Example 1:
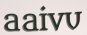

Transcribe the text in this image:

aaivu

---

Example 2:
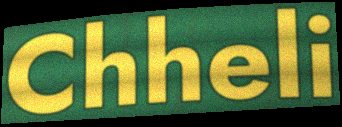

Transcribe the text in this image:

Chheli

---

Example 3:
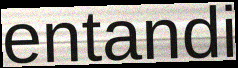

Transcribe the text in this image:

entandi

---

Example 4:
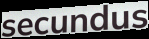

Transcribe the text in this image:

secundus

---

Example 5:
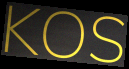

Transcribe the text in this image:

KOS